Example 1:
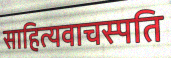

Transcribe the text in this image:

साहित्यवाचस्पति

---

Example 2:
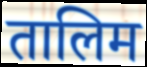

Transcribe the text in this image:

तालिम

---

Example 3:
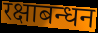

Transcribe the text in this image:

रक्षाबन्धन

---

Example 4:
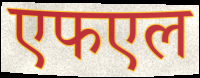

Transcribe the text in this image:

एफएल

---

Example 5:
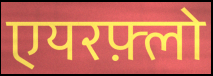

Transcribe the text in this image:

एयरफ़्लो